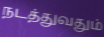
நடத்துவதும்